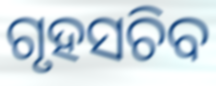
ଗୃହସଚିବ